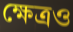
ক্ষেত্রও